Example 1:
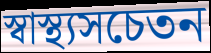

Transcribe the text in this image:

স্বাস্থ্যসচেতন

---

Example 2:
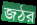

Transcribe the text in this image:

জঠর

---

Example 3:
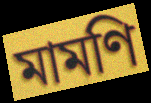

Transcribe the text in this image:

মামণি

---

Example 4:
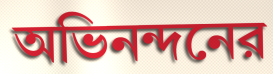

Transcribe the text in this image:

অভিনন্দনের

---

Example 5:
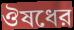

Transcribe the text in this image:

ঔষধের